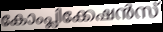
കോംപ്ലിക്കേഷൻസ്